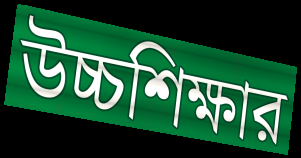
উচ্চশিক্ষার